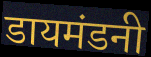
डायमंडनी